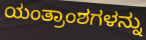
ಯಂತ್ರಾಂಶಗಳನ್ನು